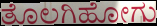
ತೊಲಗಿಹೋಗು